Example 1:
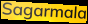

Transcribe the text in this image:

Sagarmala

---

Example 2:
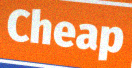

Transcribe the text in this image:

Cheap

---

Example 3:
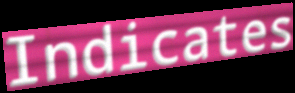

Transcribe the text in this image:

Indicates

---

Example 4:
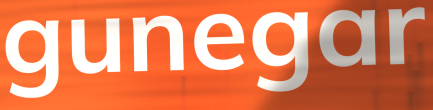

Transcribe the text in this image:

gunegar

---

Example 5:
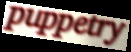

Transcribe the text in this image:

puppetry